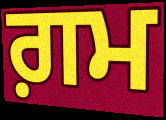
ਗ਼ਮ